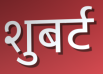
शुबर्ट